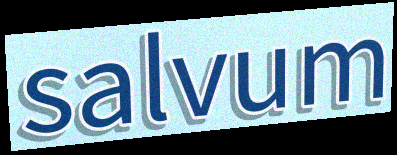
salvum